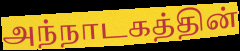
அந்நாடகத்தின்